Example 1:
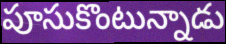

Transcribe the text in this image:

పూసుకొంటున్నాడు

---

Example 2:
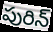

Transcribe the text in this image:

పురిన్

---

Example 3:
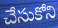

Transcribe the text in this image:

చేసుకోని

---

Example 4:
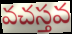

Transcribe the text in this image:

వచస్తవ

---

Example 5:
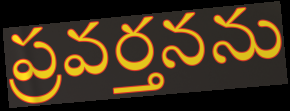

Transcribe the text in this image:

ప్రవర్తనను